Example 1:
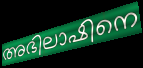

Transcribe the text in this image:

അഭിലാഷിനെ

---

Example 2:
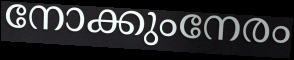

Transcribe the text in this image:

നോക്കുംനേരം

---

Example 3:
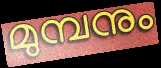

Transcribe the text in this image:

മുമ്പനും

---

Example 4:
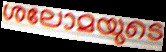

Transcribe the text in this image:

ശലോമയുടെ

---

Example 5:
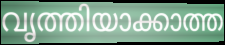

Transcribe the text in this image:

വൃത്തിയാക്കാത്ത